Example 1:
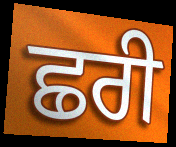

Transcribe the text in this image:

ਛਰੀ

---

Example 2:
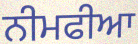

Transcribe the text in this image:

ਨੀਮਫੀਆ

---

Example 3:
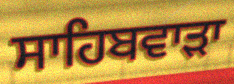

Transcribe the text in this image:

ਸਾਹਿਬਵਾੜਾ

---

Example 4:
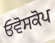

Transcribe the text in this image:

ਓਵੋਸਕੋਪ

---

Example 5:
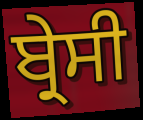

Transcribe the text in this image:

ਬ੍ਰੇਸੀ